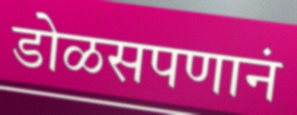
डोळसपणानं